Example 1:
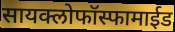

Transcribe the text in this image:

सायक्लोफॉस्फामाईड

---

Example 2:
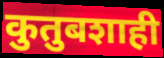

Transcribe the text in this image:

कुतुबशाही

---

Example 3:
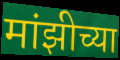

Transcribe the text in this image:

मांझीच्या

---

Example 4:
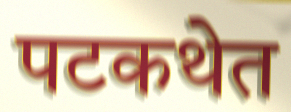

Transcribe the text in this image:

पटकथेत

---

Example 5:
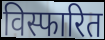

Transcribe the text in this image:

विस्फारित